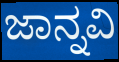
ಜಾನ್ನವಿ